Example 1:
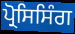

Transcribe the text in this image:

ਪ੍ਰੋਸਿਸਿੰਗ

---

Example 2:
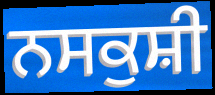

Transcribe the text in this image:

ਨਸਕੁਸ਼ੀ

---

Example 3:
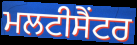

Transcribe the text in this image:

ਮਲਟੀਸੈਂਟਰ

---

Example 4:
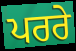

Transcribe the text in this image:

ਪਰਰੇ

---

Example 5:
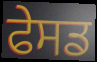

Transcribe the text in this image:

ਫੇਸਡ